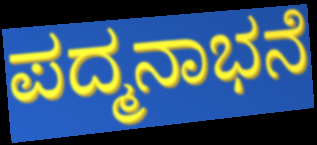
ಪದ್ಮನಾಭನೆ